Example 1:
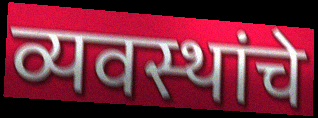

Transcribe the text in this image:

व्यवस्थांचे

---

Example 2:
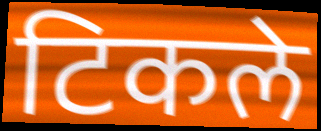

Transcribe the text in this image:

टिकले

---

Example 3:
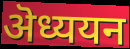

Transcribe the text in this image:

ऄध्ययन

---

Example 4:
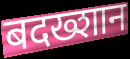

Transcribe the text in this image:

बदख्शान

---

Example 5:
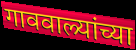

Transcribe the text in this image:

गाववाल्यांच्या